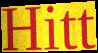
Hitt